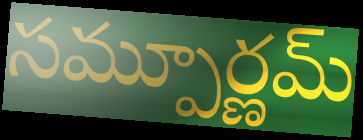
సమ్పూర్ణమ్